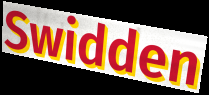
Swidden